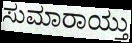
ಸುಮಾರಾಯ್ತು